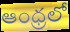
ఆంధ్రలో